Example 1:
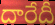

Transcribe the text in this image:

దారేదీ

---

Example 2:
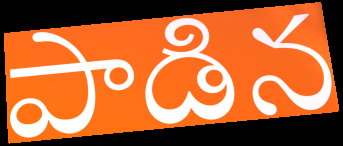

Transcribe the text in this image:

పాడిన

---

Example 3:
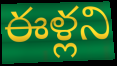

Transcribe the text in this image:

ఈళ్లని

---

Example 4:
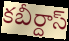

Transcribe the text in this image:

కబీర్దాస్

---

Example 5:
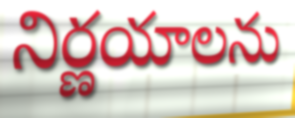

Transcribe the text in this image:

నిర్ణయాలను